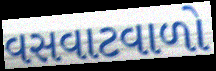
વસવાટવાળો